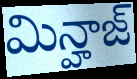
మిన్హాజ్